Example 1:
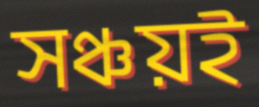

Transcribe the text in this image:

সঞ্চয়ই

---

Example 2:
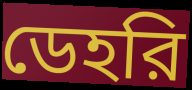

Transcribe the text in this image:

ডেহরি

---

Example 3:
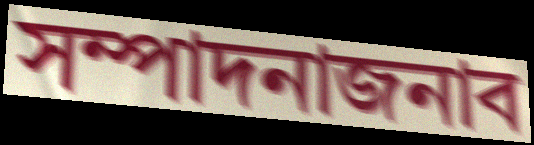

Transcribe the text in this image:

সম্পাদনাজনাব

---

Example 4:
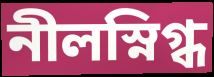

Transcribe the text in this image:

নীলস্নিগ্ধ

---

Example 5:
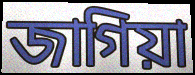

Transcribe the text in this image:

জাগিয়া